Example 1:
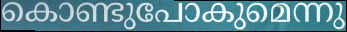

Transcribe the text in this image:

കൊണ്ടുപോകുമെന്നു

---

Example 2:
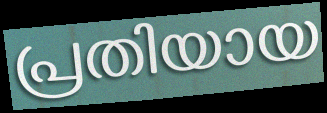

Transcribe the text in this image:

പ്രതിയായ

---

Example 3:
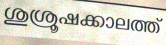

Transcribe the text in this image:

ശുശ്രൂഷക്കാലത്ത്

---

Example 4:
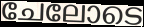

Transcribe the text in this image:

ചേലോടെ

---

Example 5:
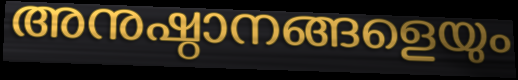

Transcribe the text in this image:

അനുഷ്ഠാനങ്ങളെയും